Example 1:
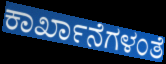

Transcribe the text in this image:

ಕಾರ್ಖಾನೆಗಳಂತೆ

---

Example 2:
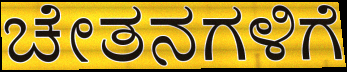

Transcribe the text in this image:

ಚೇತನಗಳಿಗೆ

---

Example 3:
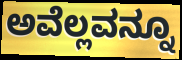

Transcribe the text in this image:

ಅವೆಲ್ಲವನ್ನೂ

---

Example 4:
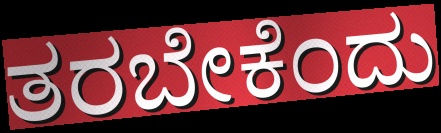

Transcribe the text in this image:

ತರಬೇಕೆಂದು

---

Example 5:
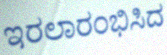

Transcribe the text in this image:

ಇರಲಾರಂಭಿಸಿದ